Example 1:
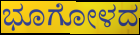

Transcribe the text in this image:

ಭೂಗೋಳದ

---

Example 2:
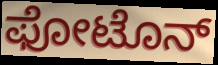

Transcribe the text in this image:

ಫೋಟೊನ್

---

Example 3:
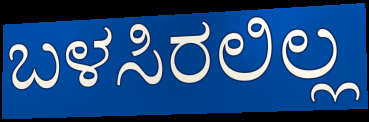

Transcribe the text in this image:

ಬಳಸಿರಲಿಲ್ಲ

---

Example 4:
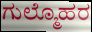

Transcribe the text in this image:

ಗುಲ್ಮೊಹರ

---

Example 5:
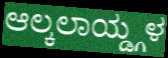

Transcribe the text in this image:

ಆಲ್ಕಲಾಯ್ಡ್ಗಳ